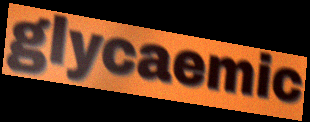
glycaemic